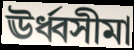
ঊর্ধ্বসীমা